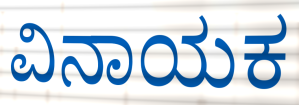
ವಿನಾಯಕ